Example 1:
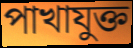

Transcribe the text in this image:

পাখাযুক্ত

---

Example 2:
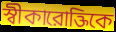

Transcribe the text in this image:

স্বীকারোক্তিকে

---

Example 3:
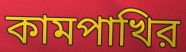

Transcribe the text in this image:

কামপাখির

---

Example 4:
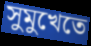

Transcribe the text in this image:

সুমুখেতে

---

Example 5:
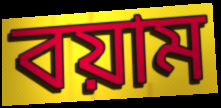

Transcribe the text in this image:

বয়াম